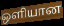
ஒளியான